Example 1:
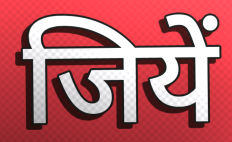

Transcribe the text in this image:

जियें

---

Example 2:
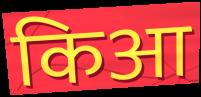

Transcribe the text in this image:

किआ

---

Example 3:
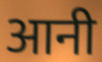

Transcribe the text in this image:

आनी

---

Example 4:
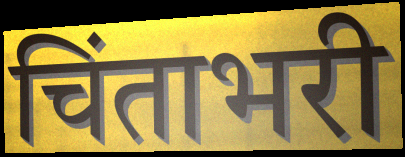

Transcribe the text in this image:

चिंताभरी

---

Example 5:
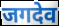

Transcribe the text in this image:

जगदेव